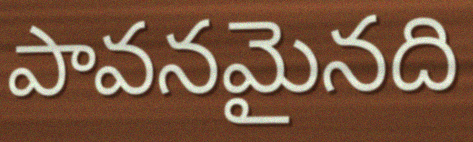
పావనమైనది